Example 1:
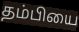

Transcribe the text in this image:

தம்பியை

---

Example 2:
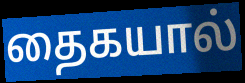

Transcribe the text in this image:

தைகயால்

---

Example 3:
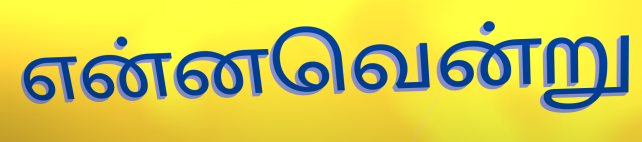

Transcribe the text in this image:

என்னவென்று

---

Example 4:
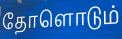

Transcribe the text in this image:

தோளொடும்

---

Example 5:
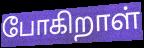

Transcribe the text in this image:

போகிறாள்